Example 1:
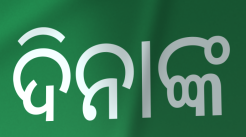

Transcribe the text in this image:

ଦିନାଙ୍କ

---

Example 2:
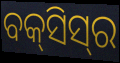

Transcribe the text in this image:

ବକ୍‌ସିସ୍‌ର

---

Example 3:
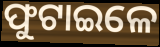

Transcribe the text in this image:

ଫୁଟାଇଳେ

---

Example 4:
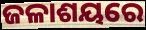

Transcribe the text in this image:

ଜଳାଶୟରେ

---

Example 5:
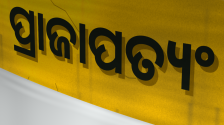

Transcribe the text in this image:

ପ୍ରାଜାପତ୍ୟଂ